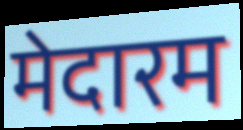
मेदारम